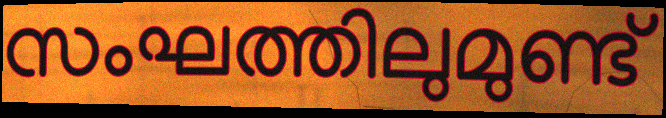
സംഘത്തിലുമുണ്ട്